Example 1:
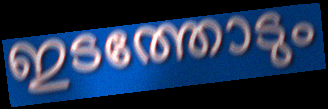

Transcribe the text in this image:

ഇടത്തോടും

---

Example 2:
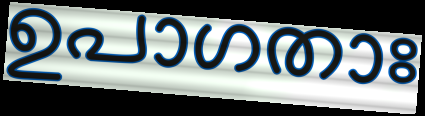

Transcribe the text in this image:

ഉപാഗതാഃ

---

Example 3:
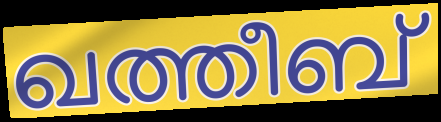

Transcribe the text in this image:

ഖത്തീബ്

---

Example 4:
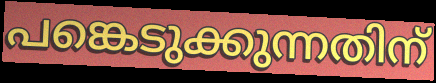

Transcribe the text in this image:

പങ്കെടുക്കുന്നതിന്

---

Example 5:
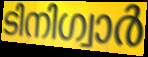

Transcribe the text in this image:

ടിനിഗ്വാർ